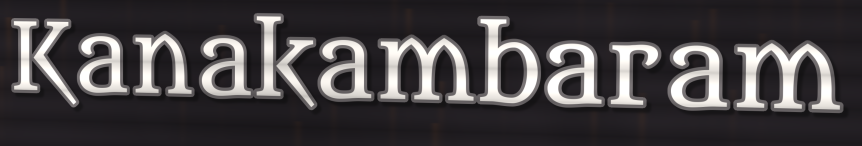
Kanakambaram